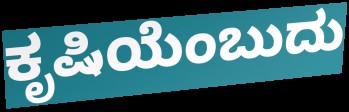
ಕೃಷಿಯೆಂಬುದು